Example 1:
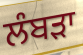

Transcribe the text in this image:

ਲੰਬੜਾ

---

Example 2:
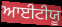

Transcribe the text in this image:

ਆਈਟੀਯੂ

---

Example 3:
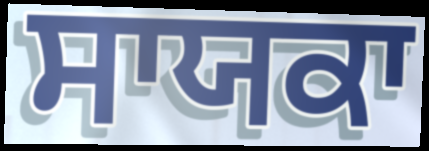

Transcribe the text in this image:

ਸਾਯਕਾ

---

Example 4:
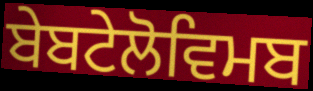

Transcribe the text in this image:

ਬੇਬਟੇਲੋਵਿਮਬ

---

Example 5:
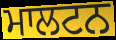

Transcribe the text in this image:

ਮਾਲਟਨ